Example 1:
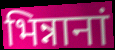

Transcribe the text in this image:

भिन्नानां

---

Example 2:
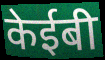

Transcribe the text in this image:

केईबी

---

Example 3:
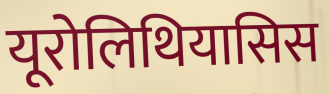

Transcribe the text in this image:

यूरोलिथियासिस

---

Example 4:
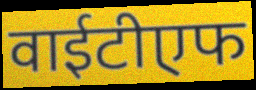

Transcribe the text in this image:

वाईटीएफ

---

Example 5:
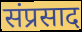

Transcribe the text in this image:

संप्रसाद